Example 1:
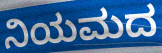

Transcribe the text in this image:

ನಿಯಮದ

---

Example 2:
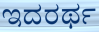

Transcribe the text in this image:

ಇದರರ್ಥ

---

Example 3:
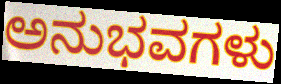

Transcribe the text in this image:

ಅನುಭವಗಳು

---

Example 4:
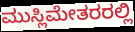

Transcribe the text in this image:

ಮುಸ್ಲಿಮೇತರರಲ್ಲಿ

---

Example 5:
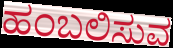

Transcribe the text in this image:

ಹಂಬಲಿಸುವ